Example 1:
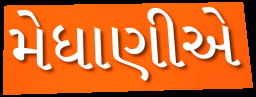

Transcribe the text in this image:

મેધાણીએ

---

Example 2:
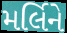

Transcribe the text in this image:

મર્લિને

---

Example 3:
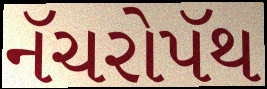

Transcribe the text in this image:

નૅચરોપૅથ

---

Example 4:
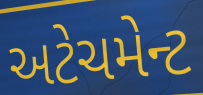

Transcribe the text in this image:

અટેચમેન્ટ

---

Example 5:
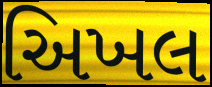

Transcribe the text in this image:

અિખલ